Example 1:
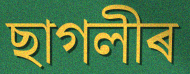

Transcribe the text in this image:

ছাগলীৰ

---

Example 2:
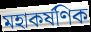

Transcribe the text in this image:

মহাকৰ্ষণিক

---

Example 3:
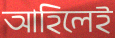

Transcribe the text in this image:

আহিলেই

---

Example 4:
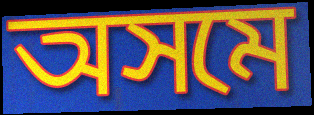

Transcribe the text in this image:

অসমে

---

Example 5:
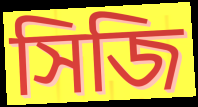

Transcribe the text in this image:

সিজি